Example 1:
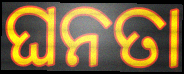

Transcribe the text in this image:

ଘନତା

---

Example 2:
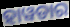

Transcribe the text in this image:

ହାୱଡାର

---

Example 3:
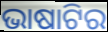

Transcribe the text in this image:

ଭାଷାଟିର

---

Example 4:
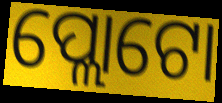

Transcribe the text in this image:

ପ୍ଲୋଟୋ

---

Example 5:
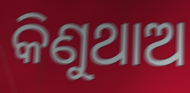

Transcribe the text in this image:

କିଣୁଥାଅ